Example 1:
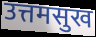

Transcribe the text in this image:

उत्तमसुख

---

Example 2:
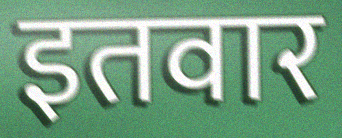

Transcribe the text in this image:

इतवार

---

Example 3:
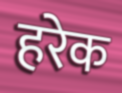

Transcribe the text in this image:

हरेक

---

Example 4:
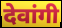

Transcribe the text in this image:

देवांगी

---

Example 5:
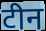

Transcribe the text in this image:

टीन